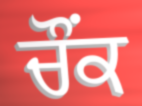
ਚੌਂਕ